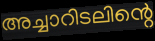
അച്ചാറിടലിന്റെ